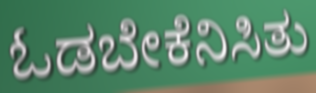
ಓಡಬೇಕೆನಿಸಿತು